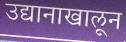
उद्यानाखालून